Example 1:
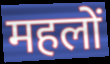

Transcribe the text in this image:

महलों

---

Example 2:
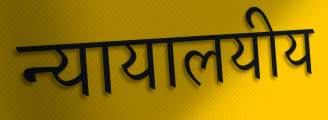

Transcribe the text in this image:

न्यायालयीय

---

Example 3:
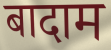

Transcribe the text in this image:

बादाम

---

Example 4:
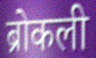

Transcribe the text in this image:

ब्रोकली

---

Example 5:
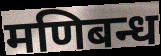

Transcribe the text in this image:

मणिबन्ध